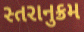
સ્તરાનુક્રમ